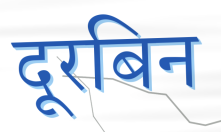
दूरबिन